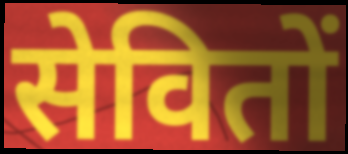
सेवितों